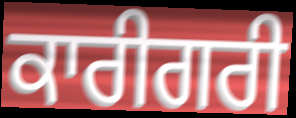
ਕਾਰੀਗਰੀ